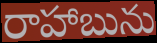
రాహాబును